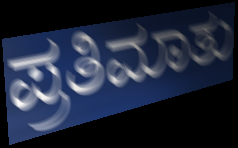
ಪ್ರತಿಮಾತು